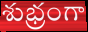
శుభ్రంగా